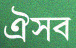
ঐসব